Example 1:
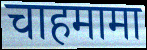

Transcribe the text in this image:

चाहमामा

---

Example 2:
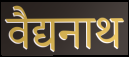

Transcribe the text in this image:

वैद्यनाथ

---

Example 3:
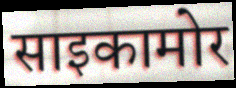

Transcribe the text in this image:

साइकामोर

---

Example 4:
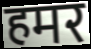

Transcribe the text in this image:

हमर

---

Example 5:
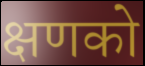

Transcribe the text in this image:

क्षणको